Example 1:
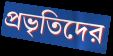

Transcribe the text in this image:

প্রভৃতিদের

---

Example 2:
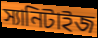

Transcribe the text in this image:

স্যানিটাইজ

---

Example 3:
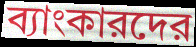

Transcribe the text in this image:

ব্যাংকারদের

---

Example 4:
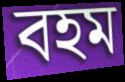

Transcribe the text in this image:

বহম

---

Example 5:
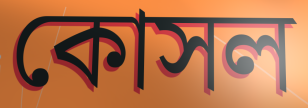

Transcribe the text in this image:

কোসল